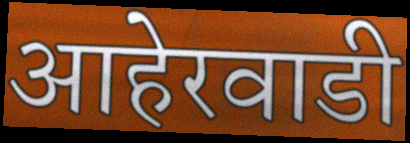
आहेरवाडी